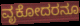
ವೃಕೋದರನೂ